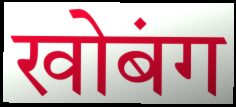
खोबंग